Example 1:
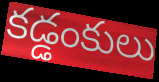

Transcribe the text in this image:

కడ్డంకులు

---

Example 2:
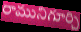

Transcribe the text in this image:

రామునిగూర్చి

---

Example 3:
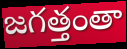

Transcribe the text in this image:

జగత్తంతా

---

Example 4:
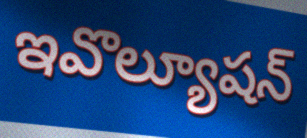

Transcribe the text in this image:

ఇవొల్యూషన్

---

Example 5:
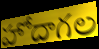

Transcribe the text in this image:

హోదాగల